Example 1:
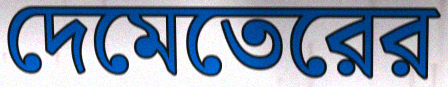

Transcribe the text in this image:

দেমেতেরের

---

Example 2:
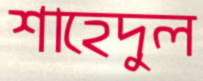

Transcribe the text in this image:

শাহেদুল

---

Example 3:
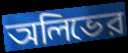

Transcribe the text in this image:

অলিভের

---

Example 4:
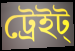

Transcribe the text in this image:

ট্রেইট্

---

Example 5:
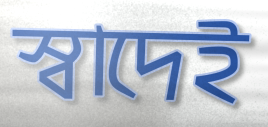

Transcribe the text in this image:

স্বাদেই